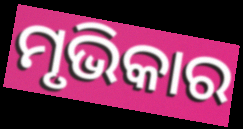
ମୃଭିକାର